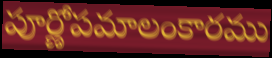
పూర్ణోపమాలంకారము